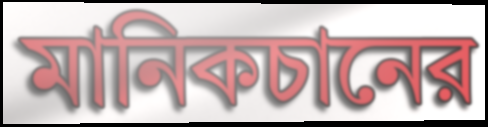
মানিকচানের